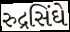
રુદ્રસિંઘે